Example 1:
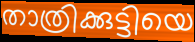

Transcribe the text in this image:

താത്രിക്കുട്ടിയെ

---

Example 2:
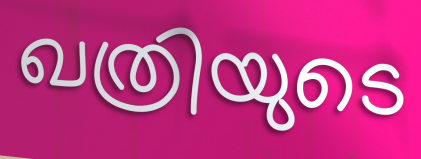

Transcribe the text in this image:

ഖത്രിയുടെ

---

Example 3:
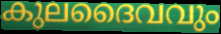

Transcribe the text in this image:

കുലദൈവവും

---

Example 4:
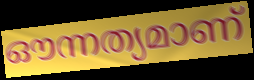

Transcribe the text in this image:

ഔന്നത്യമാണ്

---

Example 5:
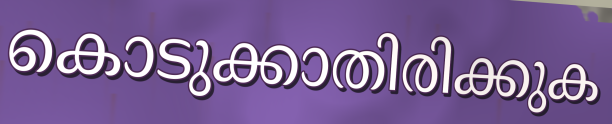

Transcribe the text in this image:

കൊടുക്കാതിരിക്കുക